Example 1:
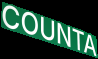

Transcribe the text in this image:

COUNTA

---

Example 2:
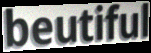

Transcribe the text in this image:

beutiful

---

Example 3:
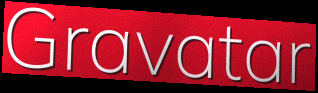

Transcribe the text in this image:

Gravatar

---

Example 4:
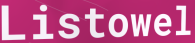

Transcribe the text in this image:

Listowel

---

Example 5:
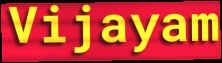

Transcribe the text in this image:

Vijayam